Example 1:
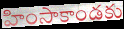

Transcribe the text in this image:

హింసాకాండకు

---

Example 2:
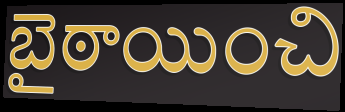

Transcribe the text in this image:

బైఠాయించి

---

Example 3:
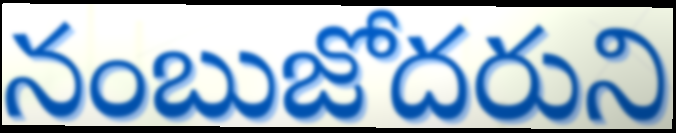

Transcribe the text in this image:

నంబుజోదరుని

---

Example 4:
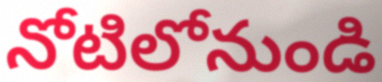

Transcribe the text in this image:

నోటిలోనుండి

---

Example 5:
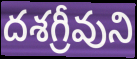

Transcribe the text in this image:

దశగ్రీవుని